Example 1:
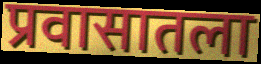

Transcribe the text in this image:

प्रवासातला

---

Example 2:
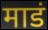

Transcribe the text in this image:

माडं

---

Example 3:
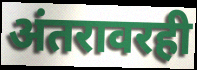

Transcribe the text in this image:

अंतरावरही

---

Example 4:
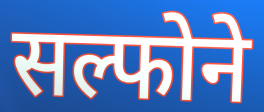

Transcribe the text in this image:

सल्फोने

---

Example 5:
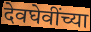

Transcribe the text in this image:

देवघेवींच्या